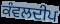
ਕੰਵਲਦੀਪ